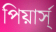
পিয়ার্স্